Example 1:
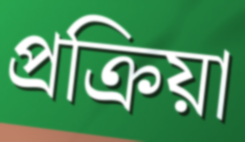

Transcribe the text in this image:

প্রক্রিয়া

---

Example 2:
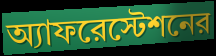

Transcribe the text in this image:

অ্যাফরেস্টেশনের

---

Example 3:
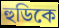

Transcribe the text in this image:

হুডিকে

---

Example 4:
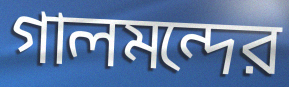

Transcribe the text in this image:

গালমন্দের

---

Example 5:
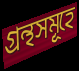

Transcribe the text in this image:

গ্রন্থসমূহে